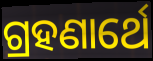
ଗ୍ରହଣାର୍ଥେ